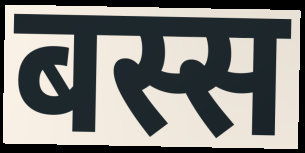
बस्स